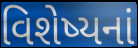
વિશેષ્યનાં